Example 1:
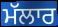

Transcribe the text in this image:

ਮੱਲਾਰ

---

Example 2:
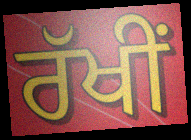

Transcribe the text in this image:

ਰੱਖੀਂ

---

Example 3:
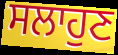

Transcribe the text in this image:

ਸਲਾਹੁਣ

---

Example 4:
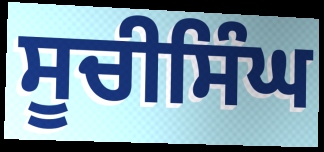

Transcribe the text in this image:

ਸੂਚੀਸਿੰਘ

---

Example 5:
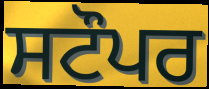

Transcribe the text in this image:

ਸਟੌਪਰ